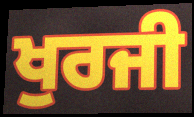
ਖੁਰਜੀ